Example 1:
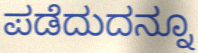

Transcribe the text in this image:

ಪಡೆದುದನ್ನೂ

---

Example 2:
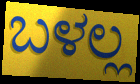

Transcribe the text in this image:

ಬಳಲ್ಲ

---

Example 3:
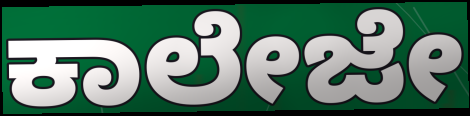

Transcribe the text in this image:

ಕಾಲೇಜೇ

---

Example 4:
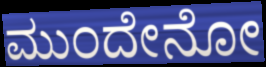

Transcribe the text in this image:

ಮುಂದೇನೋ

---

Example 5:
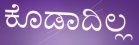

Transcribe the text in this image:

ಕೊಡಾದಿಲ್ಲ